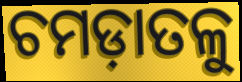
ଚମଡ଼ାତଳୁ